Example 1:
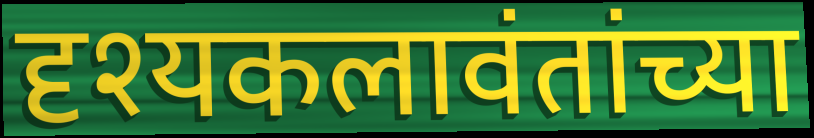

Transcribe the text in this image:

दृश्यकलावंतांच्या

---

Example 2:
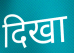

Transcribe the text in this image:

दिखा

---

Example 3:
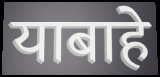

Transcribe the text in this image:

याबाहे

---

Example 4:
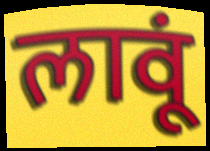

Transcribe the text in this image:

लावूं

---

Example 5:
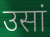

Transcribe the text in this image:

उसां